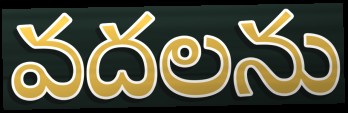
వదలను